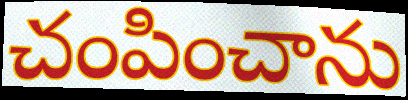
చంపించాను